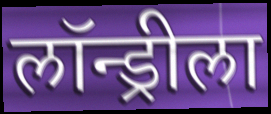
लॉन्ड्रीला